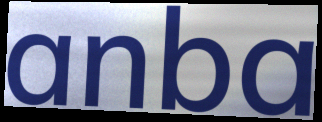
anba